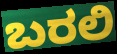
ಬರಲಿ